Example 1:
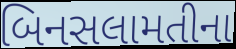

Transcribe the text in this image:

બિનસલામતીના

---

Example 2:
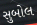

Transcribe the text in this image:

સુબોલ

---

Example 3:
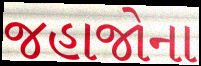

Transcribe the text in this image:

જહાજોના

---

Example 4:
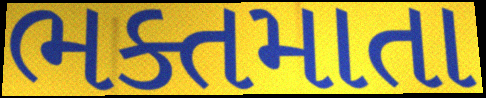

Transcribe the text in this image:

ભક્તમાતા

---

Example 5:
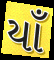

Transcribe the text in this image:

યાઁ